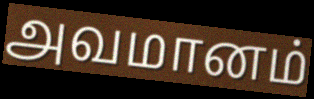
அவமானம்